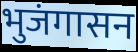
भुजंगासन